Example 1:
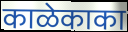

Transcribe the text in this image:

काळेकाका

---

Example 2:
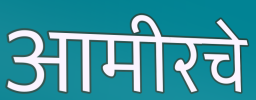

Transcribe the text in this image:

आमीरचे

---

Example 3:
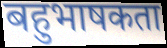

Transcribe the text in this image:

बहुभाषकता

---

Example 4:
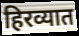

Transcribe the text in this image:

हिरव्यात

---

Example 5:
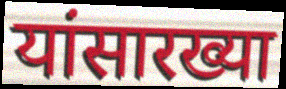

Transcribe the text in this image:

यांसारख्या